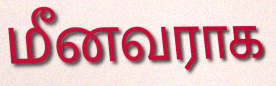
மீனவராக